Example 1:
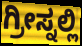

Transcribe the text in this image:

ಗ್ರೀಸ್ನಲ್ಲಿ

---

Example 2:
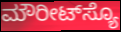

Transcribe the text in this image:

ಮೌರೀಟ್‌ಸ್ಯೊ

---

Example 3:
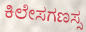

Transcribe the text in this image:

ಕಿಲೇಸಗಣಸ್ಸ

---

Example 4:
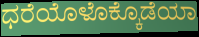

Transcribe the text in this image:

ಧರೆಯೊಳೊಕ್ಕೊಡೆಯಾ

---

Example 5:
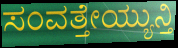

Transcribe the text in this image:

ಸಂವತ್ತೇಯ್ಯುನ್ತಿ